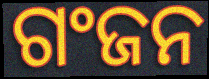
ଗଂଜନ